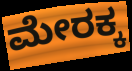
ಮೇರಕ್ಕ